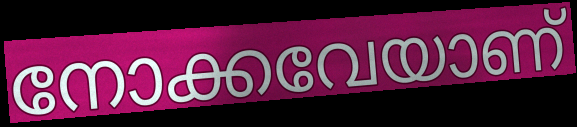
നോക്കവേയാണ്